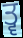
ਤ੍ਵ